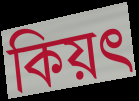
কিয়ৎ